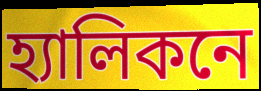
হ্যালিকনে